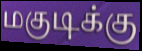
மகுடிக்கு